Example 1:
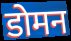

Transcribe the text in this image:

डोमन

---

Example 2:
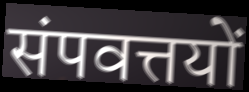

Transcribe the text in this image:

संपवत्तयों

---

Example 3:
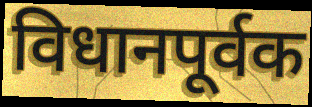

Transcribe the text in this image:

विधानपूर्वक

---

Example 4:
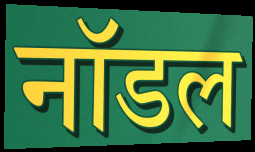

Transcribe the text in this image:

नॉडल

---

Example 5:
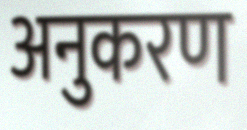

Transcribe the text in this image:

अनुकरण